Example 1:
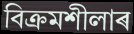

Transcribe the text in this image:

বিক্ৰমশীলাৰ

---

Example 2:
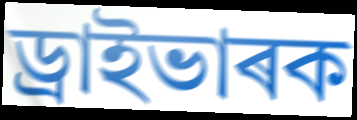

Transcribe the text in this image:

ড্ৰাইভাৰক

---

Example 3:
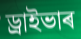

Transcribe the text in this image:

ড্ৰাইভাৰ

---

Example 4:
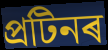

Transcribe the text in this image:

প্ৰটিনৰ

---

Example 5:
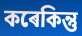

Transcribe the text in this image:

কৰেকিন্তু